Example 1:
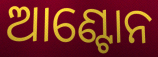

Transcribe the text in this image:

ଆଣ୍ଟୋନ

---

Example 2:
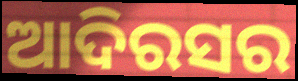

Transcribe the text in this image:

ଆଦିରସର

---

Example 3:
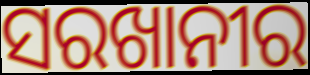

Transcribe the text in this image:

ସରଖାନୀର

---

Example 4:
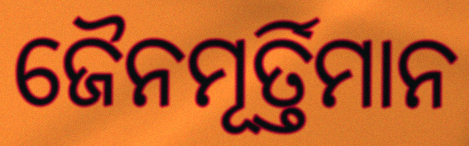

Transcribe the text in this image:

ଜୈନମୂର୍ତ୍ତିମାନ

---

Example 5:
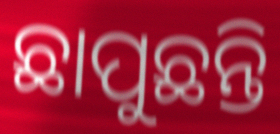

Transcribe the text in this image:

ଛାପୁଛନ୍ତି